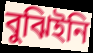
বুঝিইনি